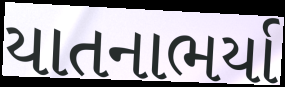
યાતનાભર્યા